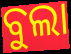
ବୁଲା